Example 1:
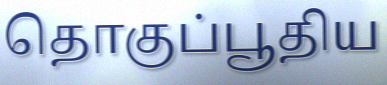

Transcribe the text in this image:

தொகுப்பூதிய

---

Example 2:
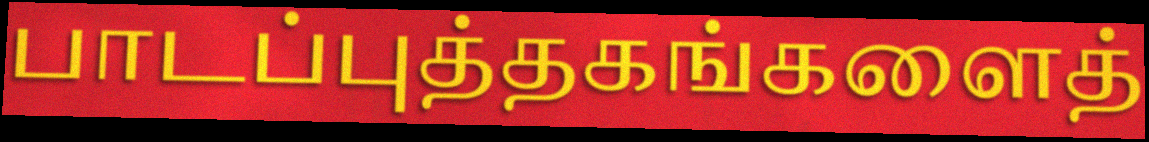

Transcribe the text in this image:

பாடப்புத்தகங்களைத்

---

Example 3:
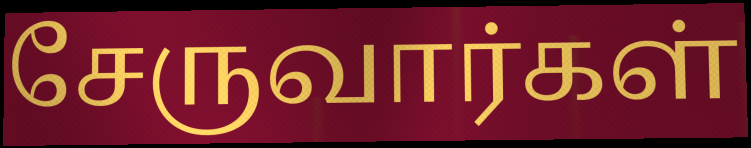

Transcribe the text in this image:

சேருவார்கள்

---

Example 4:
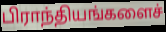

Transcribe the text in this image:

பிராந்தியங்களைச்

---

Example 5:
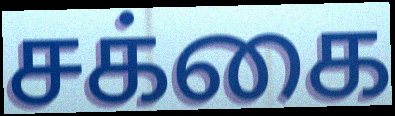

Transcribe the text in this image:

சக்கை